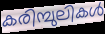
കരിമ്പുലികൾ